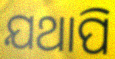
ଯଥାପି